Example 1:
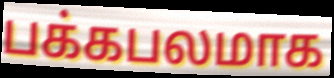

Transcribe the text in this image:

பக்கபலமாக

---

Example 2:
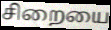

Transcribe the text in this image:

சிறையை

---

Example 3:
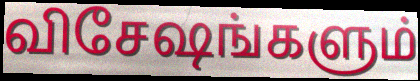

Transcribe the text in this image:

விசேஷங்களும்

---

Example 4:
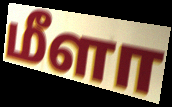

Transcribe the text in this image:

மீளா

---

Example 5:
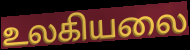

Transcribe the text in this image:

உலகியலை